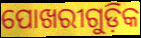
ପୋଖରୀଗୁଡ଼ିକ